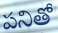
పనితో